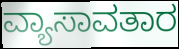
ವ್ಯಾಸಾವತಾರ